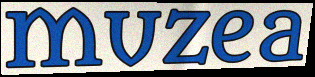
muzea